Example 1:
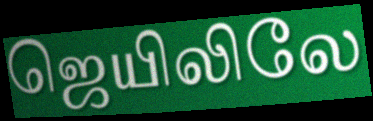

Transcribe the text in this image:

ஜெயிலிலே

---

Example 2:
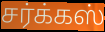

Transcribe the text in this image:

சர்க்கஸ்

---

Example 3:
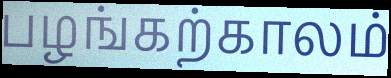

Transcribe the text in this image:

பழங்கற்காலம்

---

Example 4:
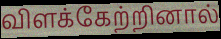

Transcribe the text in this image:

விளக்கேற்றினால்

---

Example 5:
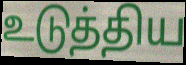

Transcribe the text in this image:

உடுத்திய